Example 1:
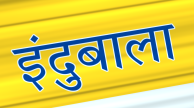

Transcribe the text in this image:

इंदुबाला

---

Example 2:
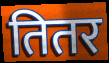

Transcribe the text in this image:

तितर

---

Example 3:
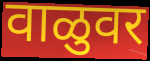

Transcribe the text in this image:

वाळुवर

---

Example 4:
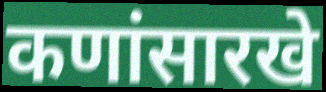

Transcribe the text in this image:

कणांसारखे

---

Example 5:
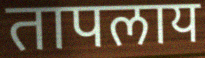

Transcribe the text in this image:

तापलाय